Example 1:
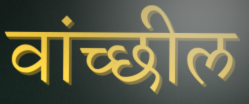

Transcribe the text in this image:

वांच्छील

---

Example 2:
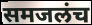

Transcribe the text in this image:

समजलंच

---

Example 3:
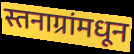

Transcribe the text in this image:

स्तनाग्रांमधून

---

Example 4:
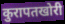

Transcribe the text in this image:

कुरापतखोरी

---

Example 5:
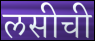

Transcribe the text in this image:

लसीची